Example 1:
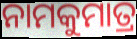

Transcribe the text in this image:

ନାମକୁମାତ୍ର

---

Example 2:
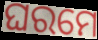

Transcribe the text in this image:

ଘରମେ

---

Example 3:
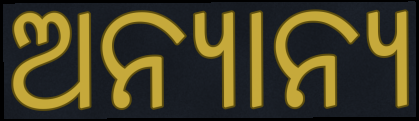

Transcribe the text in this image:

ଅନ୍ଯାନ୍ଯ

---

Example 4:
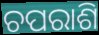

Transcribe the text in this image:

ଚପରାଶି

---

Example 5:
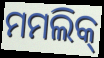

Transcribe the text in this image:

ମମଲିକ୍